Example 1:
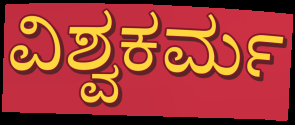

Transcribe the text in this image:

ವಿಶ್ವಕರ್ಮ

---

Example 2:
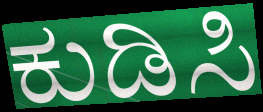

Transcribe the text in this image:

ಕುಡಿಸಿ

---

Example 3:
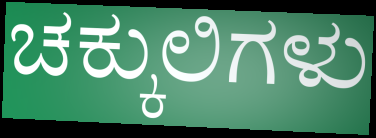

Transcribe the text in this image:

ಚಕ್ಕುಲಿಗಳು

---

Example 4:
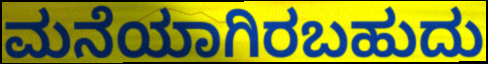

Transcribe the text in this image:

ಮನೆಯಾಗಿರಬಹುದು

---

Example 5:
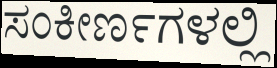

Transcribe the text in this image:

ಸಂಕೀರ್ಣಗಳಲ್ಲಿ